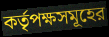
কর্তৃপক্ষসমূহের